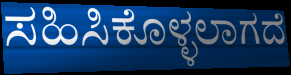
ಸಹಿಸಿಕೊಳ್ಳಲಾಗದೆ